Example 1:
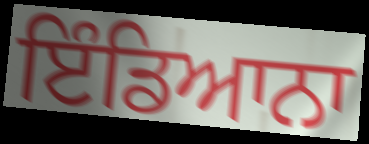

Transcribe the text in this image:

ਇੰਡਿਆਨਾ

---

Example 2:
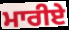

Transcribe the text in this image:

ਮਾਰੀਏ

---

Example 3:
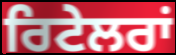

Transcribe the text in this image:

ਰਿਟੇਲਰਾਂ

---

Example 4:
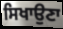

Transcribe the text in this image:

ਸਿਖਾਉਣਾ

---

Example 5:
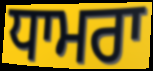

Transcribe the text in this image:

ਧਾਮਰਾ